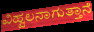
ವಿಹ್ವಲನಾಗುತ್ತಾನೆ